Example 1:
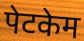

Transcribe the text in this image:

पेटकेम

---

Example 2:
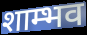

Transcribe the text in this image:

शाम्भव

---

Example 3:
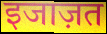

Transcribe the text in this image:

इजाज़त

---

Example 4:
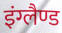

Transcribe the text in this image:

इंग्‍लैण्‍ड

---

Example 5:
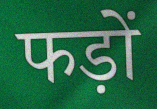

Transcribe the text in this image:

फड़ों